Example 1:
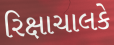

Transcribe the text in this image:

રિક્ષાચાલકે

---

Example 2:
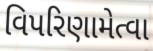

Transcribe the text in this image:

વિપરિણામેત્વા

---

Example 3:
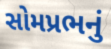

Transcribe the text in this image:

સોમપ્રભનું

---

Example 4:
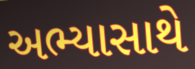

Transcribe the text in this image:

અભ્યાસાથે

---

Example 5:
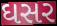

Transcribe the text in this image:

ઘસર